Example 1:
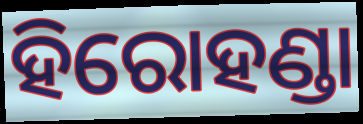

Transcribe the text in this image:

ହିରୋହଣ୍ଡା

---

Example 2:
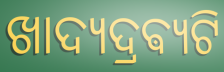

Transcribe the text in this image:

ଖାଦ୍ୟଦ୍ରଵ୍ୟଟି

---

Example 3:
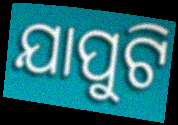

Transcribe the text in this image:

ଯାପୁଟି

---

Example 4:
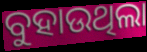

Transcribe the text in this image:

ବୁହାଉଥିଲା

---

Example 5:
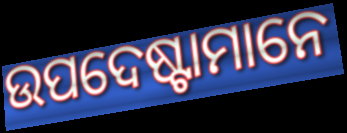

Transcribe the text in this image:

ଉପଦେଷ୍ଟାମାନେ